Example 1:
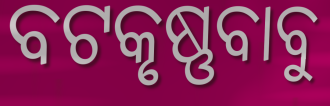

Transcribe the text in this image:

ବଟକୃଷ୍ଣବାବୁ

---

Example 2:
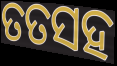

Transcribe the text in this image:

ତତସହ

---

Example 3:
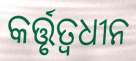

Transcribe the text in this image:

କର୍ତ୍ତୃତ୍ୱଧୀନ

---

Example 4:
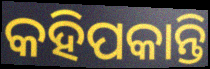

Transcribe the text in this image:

କହିପକାନ୍ତି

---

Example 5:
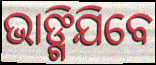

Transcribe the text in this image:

ଭାଙ୍ଗିଯିବେ